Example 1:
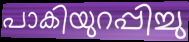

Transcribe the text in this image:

പാകിയുറപ്പിച്ചു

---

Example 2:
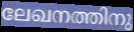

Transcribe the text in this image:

ലേഖനത്തിനു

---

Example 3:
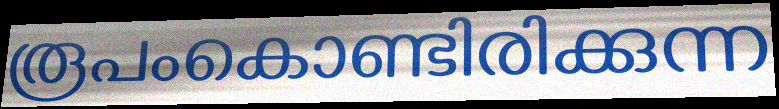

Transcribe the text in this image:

രൂപംകൊണ്ടിരിക്കുന്ന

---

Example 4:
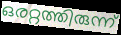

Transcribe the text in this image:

ഒരറ്റത്തിരുന്ന്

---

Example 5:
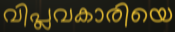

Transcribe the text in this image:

വിപ്ലവകാരിയെ